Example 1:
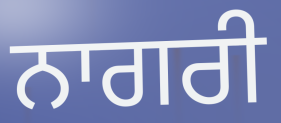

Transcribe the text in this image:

ਨਾਗਰੀ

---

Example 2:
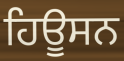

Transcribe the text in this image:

ਹਿਊਸਨ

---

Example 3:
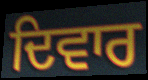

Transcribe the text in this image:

ਦਿਵਾਰ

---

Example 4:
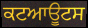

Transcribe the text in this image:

ਕਟਆਊਟਸ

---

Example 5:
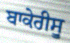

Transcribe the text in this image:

ਬਾਕੇਰੀਸੂ